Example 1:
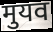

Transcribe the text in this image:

मुयव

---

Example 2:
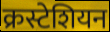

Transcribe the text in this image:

क्रस्टेशियन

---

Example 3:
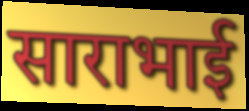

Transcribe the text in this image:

साराभाई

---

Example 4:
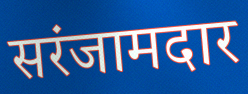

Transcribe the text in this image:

सरंजामदार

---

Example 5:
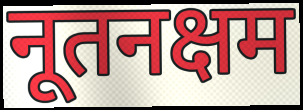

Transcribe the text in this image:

नूतनक्षम